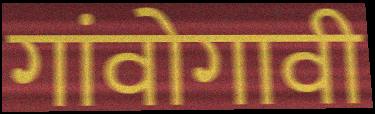
गांवोगावी